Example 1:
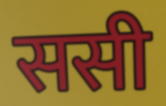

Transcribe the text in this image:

ससी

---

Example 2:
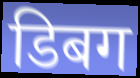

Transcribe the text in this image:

डिबग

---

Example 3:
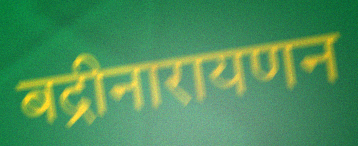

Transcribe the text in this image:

बद्रीनारायणन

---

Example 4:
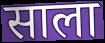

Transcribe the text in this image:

साला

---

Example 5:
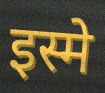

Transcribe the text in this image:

इस्मे